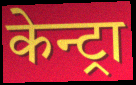
केन्ट्रा